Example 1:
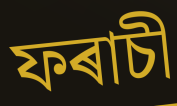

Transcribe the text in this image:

ফৰাচী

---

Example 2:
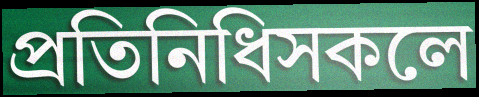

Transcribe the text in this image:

প্ৰতিনিধিসকলে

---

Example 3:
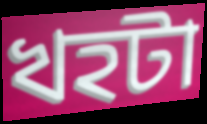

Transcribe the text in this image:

খহটা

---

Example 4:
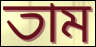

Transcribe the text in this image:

তাম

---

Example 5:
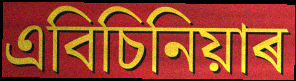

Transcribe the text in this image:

এবিচিনিয়াৰ